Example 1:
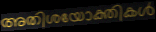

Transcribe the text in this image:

അതിശയോക്തികൾ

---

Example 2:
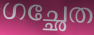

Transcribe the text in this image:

ഗച്ഛേത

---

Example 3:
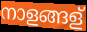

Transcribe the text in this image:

നാളങ്ങള്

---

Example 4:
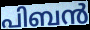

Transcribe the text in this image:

പിബൻ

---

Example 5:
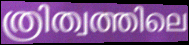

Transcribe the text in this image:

ത്രിത്വത്തിലെ